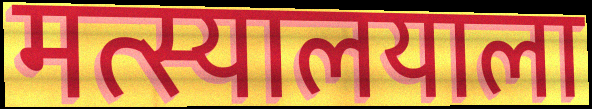
मत्स्यालयाला